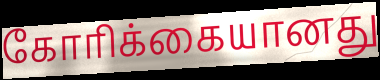
கோரிக்கையானது